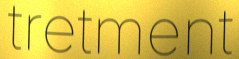
tretment